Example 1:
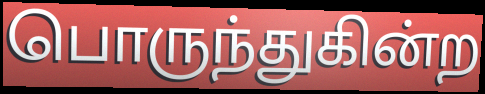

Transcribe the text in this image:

பொருந்துகின்ற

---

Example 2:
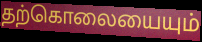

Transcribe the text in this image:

தற்கொலையையும்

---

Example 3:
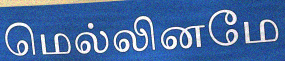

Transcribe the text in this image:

மெல்லினமே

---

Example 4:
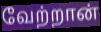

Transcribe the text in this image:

வேற்றான்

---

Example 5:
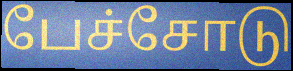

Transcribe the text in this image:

பேச்சோடு